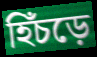
হিঁচড়ে